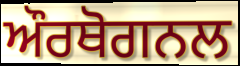
ਔਰਥੋਗਨਲ